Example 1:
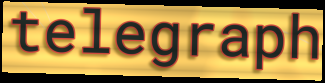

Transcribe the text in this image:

telegraph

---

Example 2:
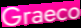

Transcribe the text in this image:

Graeco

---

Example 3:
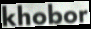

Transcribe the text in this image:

khobor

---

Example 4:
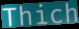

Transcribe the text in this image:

Thich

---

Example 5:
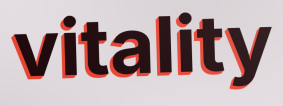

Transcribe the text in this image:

vitality